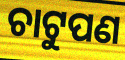
ଚାଟୁପଣ